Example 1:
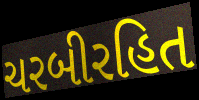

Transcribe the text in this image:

ચરબીરહિત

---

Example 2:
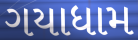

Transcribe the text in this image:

ગયાધામ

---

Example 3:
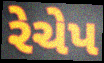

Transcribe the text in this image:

રેચેપ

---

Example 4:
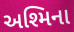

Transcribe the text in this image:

અશ્મિના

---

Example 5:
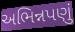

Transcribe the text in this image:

અભિન્નપણું